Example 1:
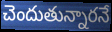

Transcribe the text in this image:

చెందుతున్నారనే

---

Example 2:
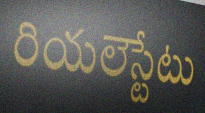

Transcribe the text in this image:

రియలెస్టేటు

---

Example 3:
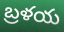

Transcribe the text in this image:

బ్రళయ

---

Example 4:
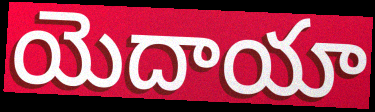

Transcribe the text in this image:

యెదాయా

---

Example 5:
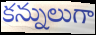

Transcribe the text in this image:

కన్నులుగా